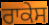
ਰਾਕੇਸ